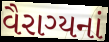
વૈરાગ્યનાં